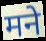
मने